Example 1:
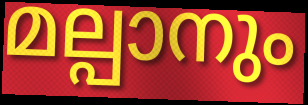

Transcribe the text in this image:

മല്പാനും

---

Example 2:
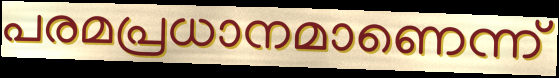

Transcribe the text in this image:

പരമപ്രധാനമാണെന്ന്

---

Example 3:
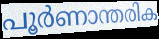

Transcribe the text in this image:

പൂർണാന്തരിക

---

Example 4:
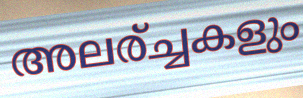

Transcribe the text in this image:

അലര്ച്ചകളും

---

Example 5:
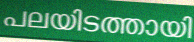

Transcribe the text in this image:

പലയിടത്തായി